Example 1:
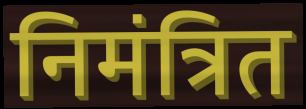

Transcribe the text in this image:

निमंत्रित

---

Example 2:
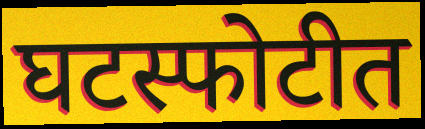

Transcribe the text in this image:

घटस्फोटीत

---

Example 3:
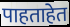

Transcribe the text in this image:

पाहताहेत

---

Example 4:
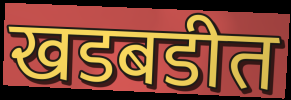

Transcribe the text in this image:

खडबडीत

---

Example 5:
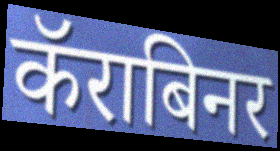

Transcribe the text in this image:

कॅराबिनर